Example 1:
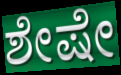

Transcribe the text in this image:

ಶೇಷೇ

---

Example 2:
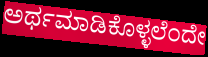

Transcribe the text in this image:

ಅರ್ಥಮಾಡಿಕೊಳ್ಳಲೆಂದೇ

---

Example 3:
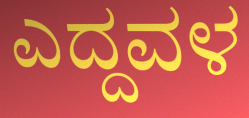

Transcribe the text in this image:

ಎದ್ದವಳ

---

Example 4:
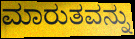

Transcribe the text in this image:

ಮಾರುತವನ್ನು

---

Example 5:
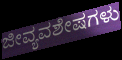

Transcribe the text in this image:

ಜೀವ್ಯವಶೇಷಗಳು